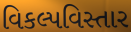
વિકલ્પવિસ્તાર